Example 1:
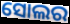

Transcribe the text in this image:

ସୋଲର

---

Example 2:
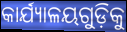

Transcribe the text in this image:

କାର୍ଯ୍ୟାଳୟଗୁଡ଼ିକୁ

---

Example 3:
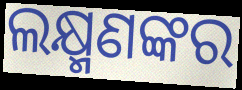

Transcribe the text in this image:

ଲକ୍ଷ୍ମଣଙ୍କର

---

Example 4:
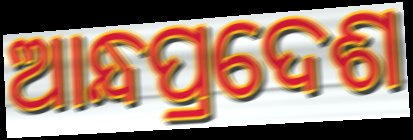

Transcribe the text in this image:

ଆନ୍ଧପ୍ରଦେଶ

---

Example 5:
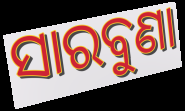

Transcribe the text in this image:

ସାରବୁଣା